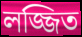
লজ্জিত